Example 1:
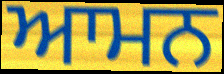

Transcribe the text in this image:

ਆਮਨ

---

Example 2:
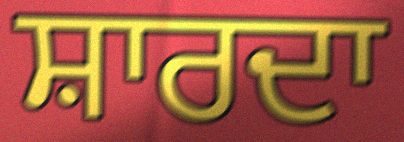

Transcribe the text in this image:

ਸ਼ਾਰਦਾ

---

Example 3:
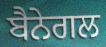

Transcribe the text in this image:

ਬੈਨੇਗਲ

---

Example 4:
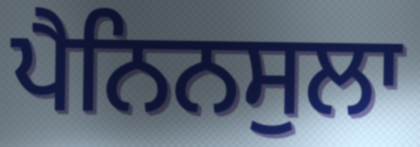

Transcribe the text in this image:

ਪੈਨਿਨਸੁਲਾ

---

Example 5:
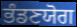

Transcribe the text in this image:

ਭੰਡਣਯੋਗ